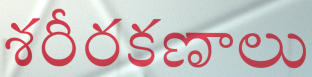
శరీరకణాలు